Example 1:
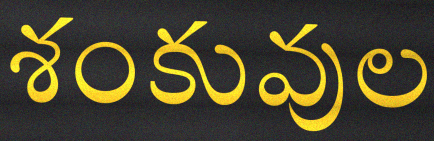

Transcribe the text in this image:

శంకువుల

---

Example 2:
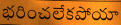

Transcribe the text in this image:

భరించలేకపోయా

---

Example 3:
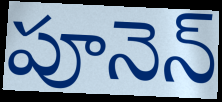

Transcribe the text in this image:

పూనెన్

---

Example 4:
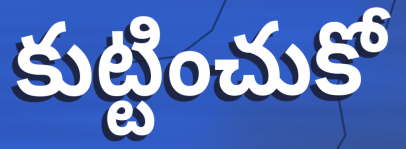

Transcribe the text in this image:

కుట్టించుకో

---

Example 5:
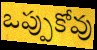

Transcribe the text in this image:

ఒప్పుకోవు